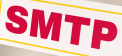
SMTP